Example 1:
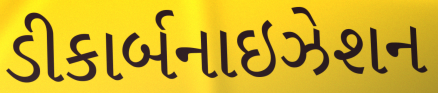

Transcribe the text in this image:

ડીકાર્બનાઇઝેશન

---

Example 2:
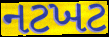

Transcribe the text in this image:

નટખટ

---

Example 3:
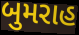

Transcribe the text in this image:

બુમરાહ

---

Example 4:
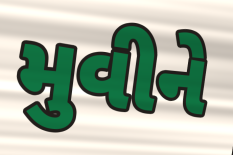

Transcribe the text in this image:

મુવીને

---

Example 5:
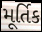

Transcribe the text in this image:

મૂર્તિક